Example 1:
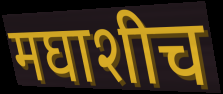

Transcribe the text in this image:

मघाशीच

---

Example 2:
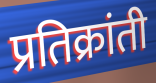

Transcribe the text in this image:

प्रतिक्रांती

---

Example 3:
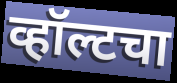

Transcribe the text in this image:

व्हॉल्टचा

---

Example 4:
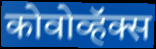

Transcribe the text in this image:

कोवोव्हॅक्स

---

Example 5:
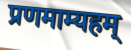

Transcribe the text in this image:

प्रणमाम्यहम्